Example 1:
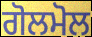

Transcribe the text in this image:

ਗੋਲਮੋਲ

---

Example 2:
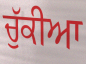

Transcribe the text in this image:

ਚੁੱਕੀਆ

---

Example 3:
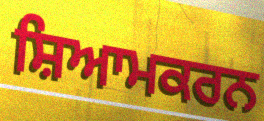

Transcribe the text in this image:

ਸ਼ਿਆਮਕਰਨ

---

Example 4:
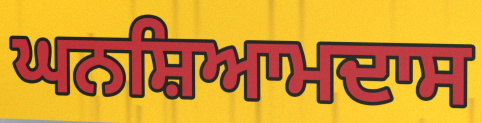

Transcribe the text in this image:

ਘਨਸ਼ਿਆਮਦਾਸ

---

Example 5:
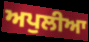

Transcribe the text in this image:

ਅਪੁਲੀਆ